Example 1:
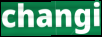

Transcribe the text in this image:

changi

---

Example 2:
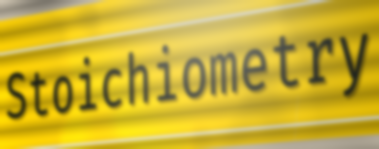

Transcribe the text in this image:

Stoichiometry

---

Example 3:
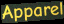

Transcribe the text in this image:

Apparel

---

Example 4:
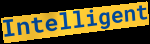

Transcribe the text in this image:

Intelligent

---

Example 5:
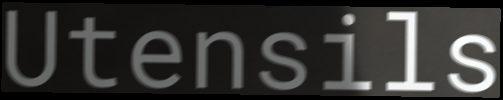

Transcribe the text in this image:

Utensils